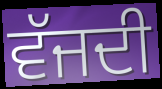
ਵੱਜਦੀ